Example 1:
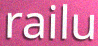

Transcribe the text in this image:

railu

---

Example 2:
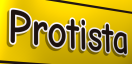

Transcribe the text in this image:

Protista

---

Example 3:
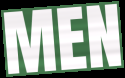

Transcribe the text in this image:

MEN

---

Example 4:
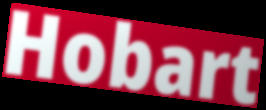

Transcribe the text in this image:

Hobart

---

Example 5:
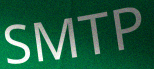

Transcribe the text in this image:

SMTP